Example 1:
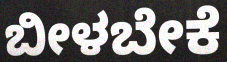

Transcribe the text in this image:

ಬೀಳಬೇಕೆ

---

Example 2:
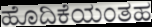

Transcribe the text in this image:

ಹೊದಿಕೆಯಂತಹ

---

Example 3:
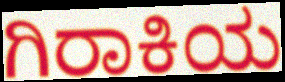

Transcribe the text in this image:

ಗಿರಾಕಿಯ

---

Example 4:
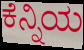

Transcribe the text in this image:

ಕೆನ್ನಿಯ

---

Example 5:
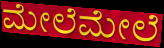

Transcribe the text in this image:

ಮೇಲೆಮೇಲೆ